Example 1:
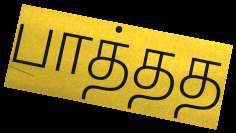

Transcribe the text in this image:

பாத்தத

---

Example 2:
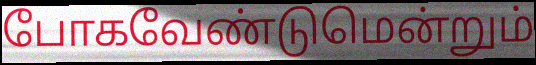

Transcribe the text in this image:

போகவேண்டுமென்றும்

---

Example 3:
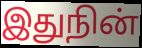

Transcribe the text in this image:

இதுநின்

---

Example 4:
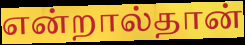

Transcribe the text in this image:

என்றால்தான்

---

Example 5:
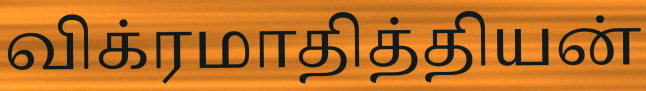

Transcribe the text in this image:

விக்ரமாதித்தியன்